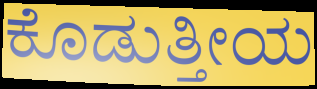
ಕೊಡುತ್ತೀಯ